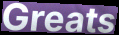
Greats